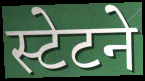
स्टेटने